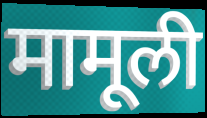
मामूली